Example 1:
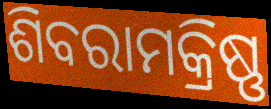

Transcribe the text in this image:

ଶିବରାମକ୍ରିଷ୍ଣ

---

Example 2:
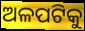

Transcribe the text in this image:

ଅଳପଟିକୁ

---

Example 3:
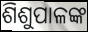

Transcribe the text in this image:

ଶିଶୁପାଳଙ୍କ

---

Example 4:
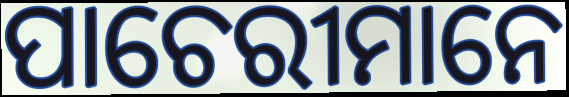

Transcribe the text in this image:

ପାଚେରୀମାନେ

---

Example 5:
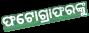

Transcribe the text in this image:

ଫଟୋଗ୍ରାଫରଙ୍କୁ